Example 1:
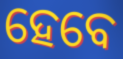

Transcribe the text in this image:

ହେବେ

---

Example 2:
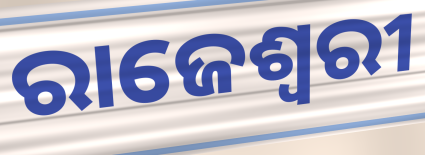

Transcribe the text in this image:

ରାଜେଶ୍ଵରୀ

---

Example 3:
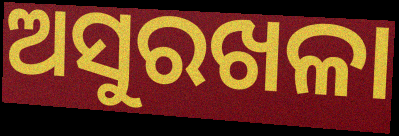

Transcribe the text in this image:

ଅସୁରଖଳା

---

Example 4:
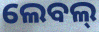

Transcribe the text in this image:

ଲେବଲ୍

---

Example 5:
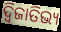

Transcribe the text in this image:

ଦ୍ବିଜାତିଭ୍ୟ